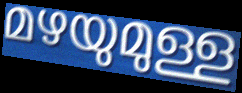
മഴയുമുള്ള